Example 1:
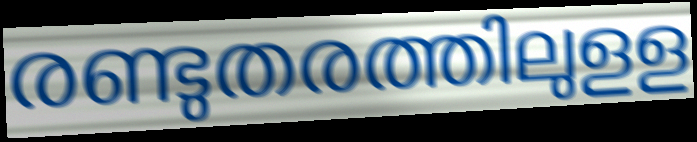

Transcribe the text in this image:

രണ്ടുതരത്തിലുളള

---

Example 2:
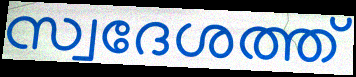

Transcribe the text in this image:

സ്വദേശത്ത്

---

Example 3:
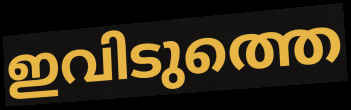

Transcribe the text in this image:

ഇവിടുത്തെ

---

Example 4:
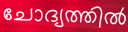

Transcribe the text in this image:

ചോദ്യത്തിൽ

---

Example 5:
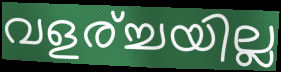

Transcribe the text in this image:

വളര്ച്ചയില്ല